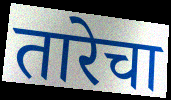
तारेचा